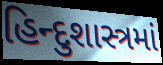
હિન્દુશાસ્ત્રમાં